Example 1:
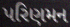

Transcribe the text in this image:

પરિણમન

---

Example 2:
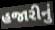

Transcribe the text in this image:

હજારીનું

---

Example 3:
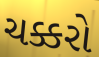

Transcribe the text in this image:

ચક્કરો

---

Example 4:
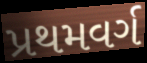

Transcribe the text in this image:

પ્રથમવર્ગ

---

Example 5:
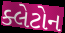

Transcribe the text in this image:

ક્લેટોન